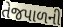
તેજપાળની